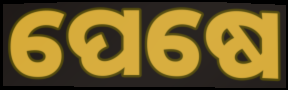
ପେଷେ